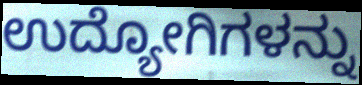
ಉದ್ಯೋಗಿಗಳನ್ನು